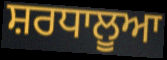
ਸ਼ਰਧਾਲੂਆ